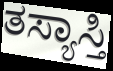
ತಸ್ಯಾಸ್ತಿ